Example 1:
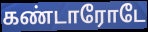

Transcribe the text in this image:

கண்டாரோடே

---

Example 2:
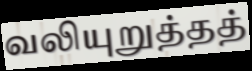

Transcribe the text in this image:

வலியுறுத்தத்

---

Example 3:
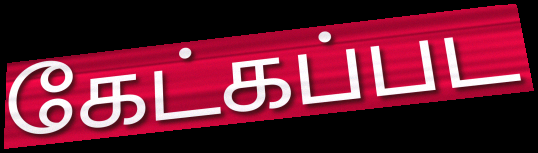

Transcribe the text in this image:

கேட்கப்பட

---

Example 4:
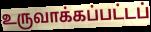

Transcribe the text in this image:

உருவாக்கப்பட்டப்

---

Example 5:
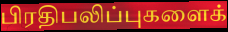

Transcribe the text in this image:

பிரதிபலிப்புகளைக்